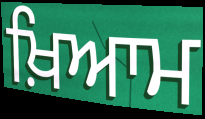
ਖ਼ਿਆਮ